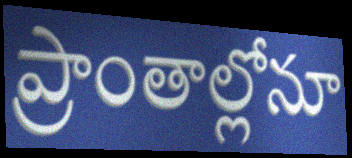
ప్రాంతాల్లోనూ